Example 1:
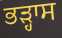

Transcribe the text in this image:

ਭੜ੍ਹਾਸ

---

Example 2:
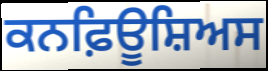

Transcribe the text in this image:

ਕਨਫ਼ਿਊਸ਼ਿਅਸ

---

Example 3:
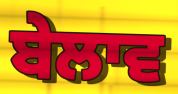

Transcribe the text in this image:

ਬੇਲਾਵ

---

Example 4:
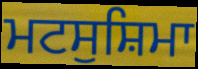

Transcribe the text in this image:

ਮਟਸੁਸ਼ਿਮਾ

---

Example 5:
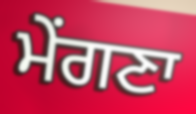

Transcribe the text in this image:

ਮੇਂਗਣਾ